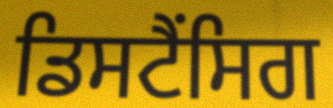
ਡਿਸਟੈਂਸਿਗ